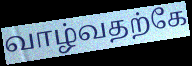
வாழ்வதற்கே